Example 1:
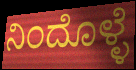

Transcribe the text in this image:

ನಿಂದೊಳ್ಳೆ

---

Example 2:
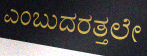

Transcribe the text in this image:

ಎಂಬುದರತ್ತಲೇ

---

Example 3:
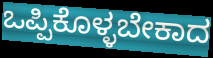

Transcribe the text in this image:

ಒಪ್ಪಿಕೊಳ್ಳಬೇಕಾದ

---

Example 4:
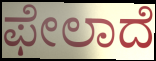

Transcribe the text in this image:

ಫೇಲಾದೆ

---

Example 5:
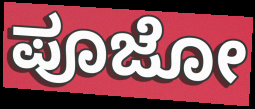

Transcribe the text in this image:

ಪೂಜೋ